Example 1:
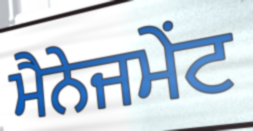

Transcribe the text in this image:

ਮੈਨੇਜਮੇੰਟ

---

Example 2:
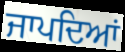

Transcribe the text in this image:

ਜਾਪਦਿਆਂ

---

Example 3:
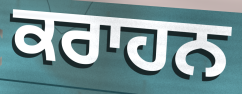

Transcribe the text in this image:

ਕਰਾਹਨ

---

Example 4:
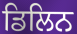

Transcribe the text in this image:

ਡਿਲਿਨ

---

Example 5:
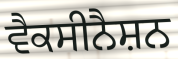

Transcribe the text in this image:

ਵੈਕਸੀਨੈਸ਼ਨ